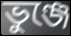
ভুঞ্জে